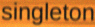
singleton